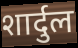
शार्दुल